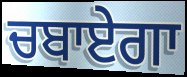
ਚਬਾਏਗਾ